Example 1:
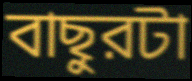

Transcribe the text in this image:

বাছুরটা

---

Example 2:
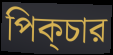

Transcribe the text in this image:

পিক্চার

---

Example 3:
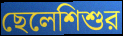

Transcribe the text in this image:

ছেলেশিশুর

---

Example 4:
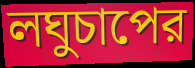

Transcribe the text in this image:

লঘুচাপের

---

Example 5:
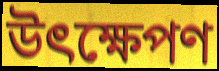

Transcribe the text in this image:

উৎক্ষেপণ